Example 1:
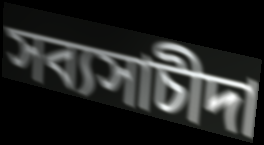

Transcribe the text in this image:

সব্যসাচীদা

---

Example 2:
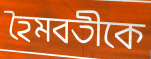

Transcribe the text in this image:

হৈমবতীকে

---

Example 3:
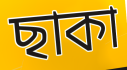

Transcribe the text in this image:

ছাকা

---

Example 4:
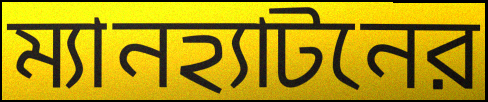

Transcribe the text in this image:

ম্যানহ্যাটনের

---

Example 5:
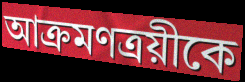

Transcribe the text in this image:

আক্রমণত্রয়ীকে